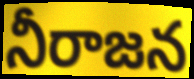
నీరాజన